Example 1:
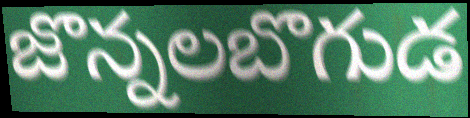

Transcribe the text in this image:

జొన్నలబొగుడ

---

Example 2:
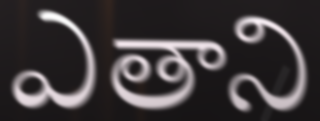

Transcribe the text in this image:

ఎతాని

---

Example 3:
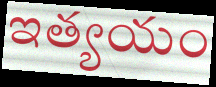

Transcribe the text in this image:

ఇత్యయం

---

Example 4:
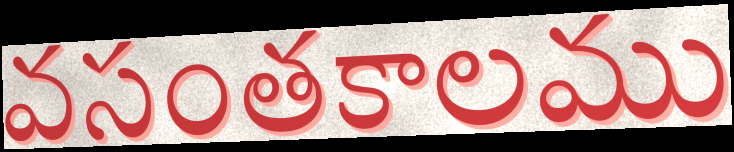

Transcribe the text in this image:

వసంతకాలము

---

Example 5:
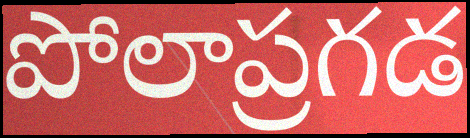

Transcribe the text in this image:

పోలాప్రగడ